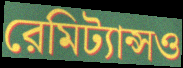
রেমিট্যান্সও